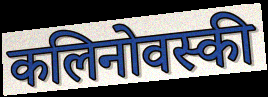
कलिनोवस्की